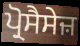
ਪ੍ਰੋਸੈਸੇਜ਼